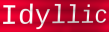
Idyllic